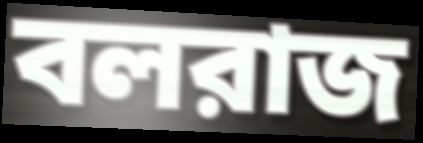
বলরাজ